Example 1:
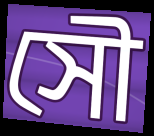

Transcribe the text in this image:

সৌ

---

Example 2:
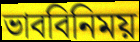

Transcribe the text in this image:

ভাববিনিময়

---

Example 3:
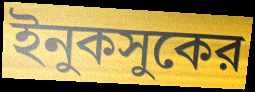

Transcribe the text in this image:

ইনুকসুকের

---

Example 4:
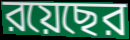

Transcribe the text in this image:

রয়েছের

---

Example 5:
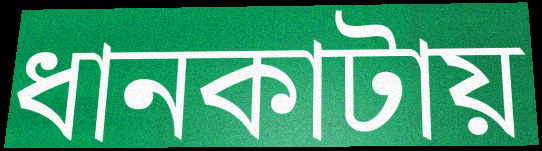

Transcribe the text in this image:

ধানকাটায়